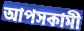
আপসকামী